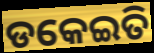
ଡକେଇତି